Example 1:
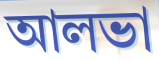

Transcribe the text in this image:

আলভা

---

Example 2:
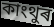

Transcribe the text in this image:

কাংথুৰ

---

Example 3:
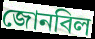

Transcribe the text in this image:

জোনবিল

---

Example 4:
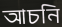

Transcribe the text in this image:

আচনি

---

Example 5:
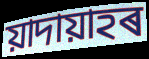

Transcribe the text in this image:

য়াদায়াহৰ